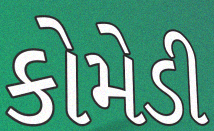
કોમેડી